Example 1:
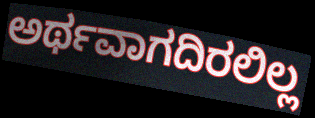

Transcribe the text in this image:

ಅರ್ಥವಾಗದಿರಲಿಲ್ಲ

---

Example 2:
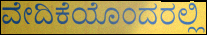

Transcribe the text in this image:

ವೇದಿಕೆಯೊಂದರಲ್ಲಿ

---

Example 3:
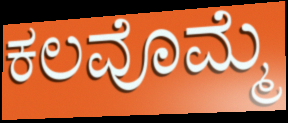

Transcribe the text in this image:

ಕಲವೊಮ್ಮೆ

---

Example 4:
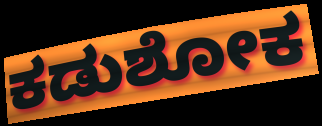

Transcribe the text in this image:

ಕಡುಶೋಕ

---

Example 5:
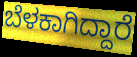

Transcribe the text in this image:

ಬೆಳಕಾಗಿದ್ದಾರೆ